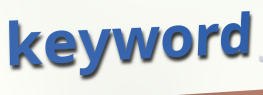
keyword